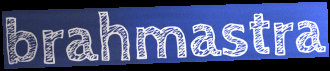
brahmastra